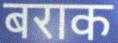
बराक